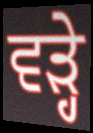
ਵੜ੍ਹੇ